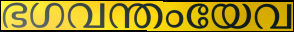
ഭഗവന്തംയേവ